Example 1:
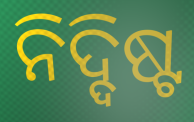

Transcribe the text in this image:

ନିଦ୍ଦିଷ୍ଟ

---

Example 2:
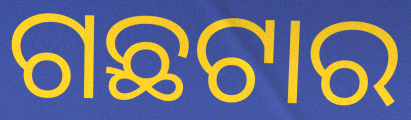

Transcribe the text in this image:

ଗଛଟାର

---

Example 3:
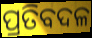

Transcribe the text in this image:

ପ୍ରତିବଦଳ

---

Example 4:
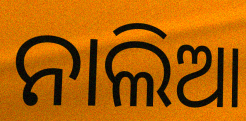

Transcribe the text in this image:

ନାଲିଆ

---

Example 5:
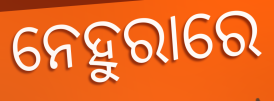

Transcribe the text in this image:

ନେହୁରାରେ